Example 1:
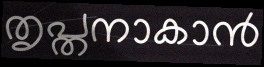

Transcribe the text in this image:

തൃപ്തനാകാൻ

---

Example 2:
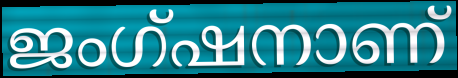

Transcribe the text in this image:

ജംഗ്ഷനാണ്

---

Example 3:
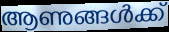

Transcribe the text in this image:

ആണുങ്ങൾക്ക്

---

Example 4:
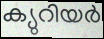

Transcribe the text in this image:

ക്യുറിയർ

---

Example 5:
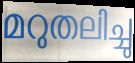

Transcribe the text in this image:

മറുതലിച്ചു